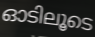
ഓടിലൂടെ